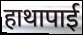
हाथापाई